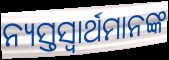
ନ୍ୟସ୍ତସ୍ଵାର୍ଥମାନଙ୍କ